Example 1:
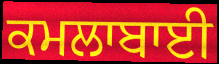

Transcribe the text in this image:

ਕਮਲਾਬਾਈ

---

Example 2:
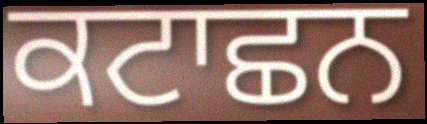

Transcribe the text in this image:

ਕਟਾਛਨ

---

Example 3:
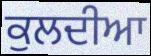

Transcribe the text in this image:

ਕੁਲਦੀਆ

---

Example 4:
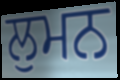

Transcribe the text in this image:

ਲੁਮਨ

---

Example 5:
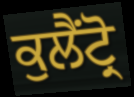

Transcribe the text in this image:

ਕੁਲੈਂਟ੍ਰੋ